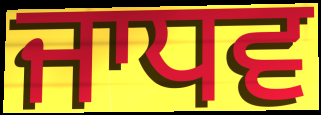
ਜਾਧਵ